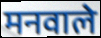
मनवाले